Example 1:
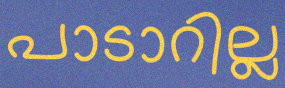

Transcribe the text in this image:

പാടാറില്ല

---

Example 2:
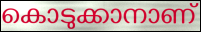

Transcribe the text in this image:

കൊടുക്കാനാണ്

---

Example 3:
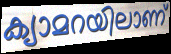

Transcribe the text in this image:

ക്യാമറയിലാണ്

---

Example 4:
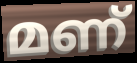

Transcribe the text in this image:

മണ്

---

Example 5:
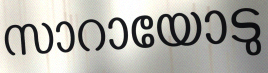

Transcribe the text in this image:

സാറായോടു